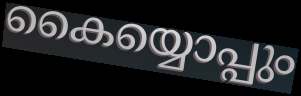
കൈയ്യൊപ്പും